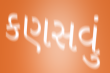
કણસવું